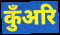
कुँअरि